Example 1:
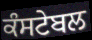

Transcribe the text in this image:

ਕੰਸਟੇਬਲ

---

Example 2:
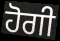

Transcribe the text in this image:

ਹੋਗੀ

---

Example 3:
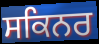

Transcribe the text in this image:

ਸਕਿਨਰ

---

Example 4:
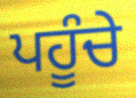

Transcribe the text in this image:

ਪਹੂੰਚੇ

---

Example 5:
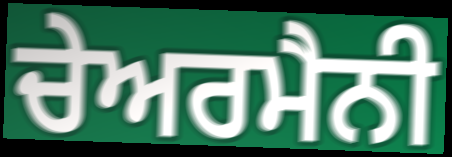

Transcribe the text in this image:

ਚੇਅਰਮੈਨੀ